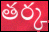
తర్క